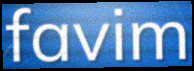
favim